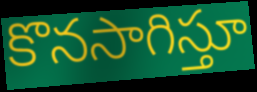
కొనసాగిస్తూ